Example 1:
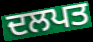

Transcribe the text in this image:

ਦਲਪਤ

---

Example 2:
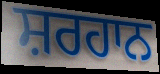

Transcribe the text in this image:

ਸ਼ਰਹਾਨ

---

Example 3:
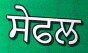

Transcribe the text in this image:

ਸੇਫਲ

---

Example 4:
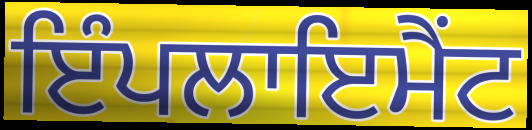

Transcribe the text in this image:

ਇੰਪਲਾਇਮੈਂਟ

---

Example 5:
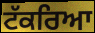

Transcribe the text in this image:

ਟੱਕਰਿਆ